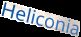
Heliconia